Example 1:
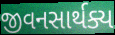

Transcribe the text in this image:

જીવનસાર્થક્ય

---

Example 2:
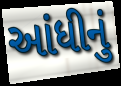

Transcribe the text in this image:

આંધીનું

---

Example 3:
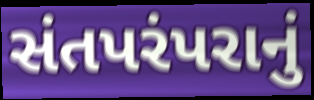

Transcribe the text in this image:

સંતપરંપરાનું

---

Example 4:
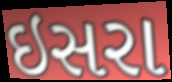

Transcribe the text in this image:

ઇસરા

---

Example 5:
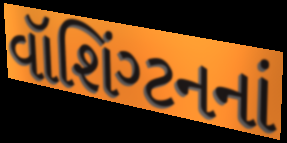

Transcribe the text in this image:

વૉશિંગ્ટનનાં